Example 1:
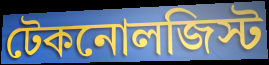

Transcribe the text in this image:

টেকনোলজিস্ট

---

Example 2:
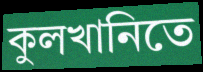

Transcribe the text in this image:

কুলখানিতে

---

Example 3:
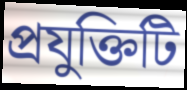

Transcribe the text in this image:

প্রযুক্তিটি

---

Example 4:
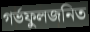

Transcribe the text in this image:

গর্ভফুলজনিত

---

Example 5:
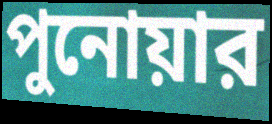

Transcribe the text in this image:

পুনোয়ার